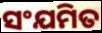
ସଂଯମିତ